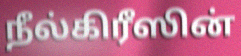
நீல்கிரீஸின்